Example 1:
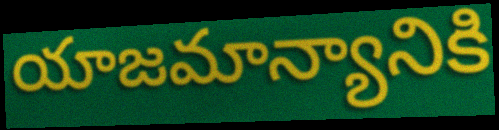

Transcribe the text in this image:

యాజమాన్యానికి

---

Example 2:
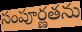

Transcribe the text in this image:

సంపూర్ణతను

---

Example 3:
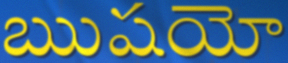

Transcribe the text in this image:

ఋషయో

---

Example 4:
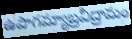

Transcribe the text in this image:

ఉపాగమ్యాబ్రవీద్రామం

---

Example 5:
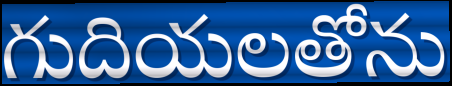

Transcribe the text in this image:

గుదియలతోను